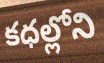
కధల్లోని